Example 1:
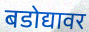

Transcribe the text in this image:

बडोद्यावर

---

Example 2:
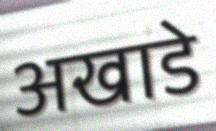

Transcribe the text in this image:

अखाडे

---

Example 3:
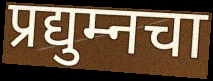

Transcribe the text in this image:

प्रद्युम्नचा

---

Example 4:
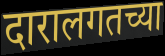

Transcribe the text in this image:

दारालगतच्या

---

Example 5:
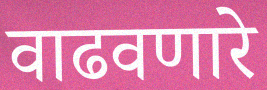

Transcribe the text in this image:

वाढवणारे